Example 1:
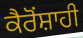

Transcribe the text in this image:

ਕੈਰੋਂਸ਼ਾਹੀ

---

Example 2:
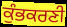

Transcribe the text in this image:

ਕੁੰਭਕਰਣੀ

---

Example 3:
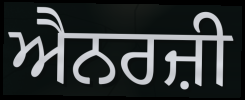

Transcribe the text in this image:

ਐਨਰਜ਼ੀ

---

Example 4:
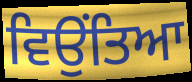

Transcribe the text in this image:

ਵਿਉਂਤਿਆ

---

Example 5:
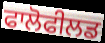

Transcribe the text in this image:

ਫਾਲੋਫੀਲਡ